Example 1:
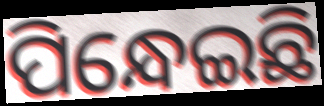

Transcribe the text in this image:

ପିନ୍ଧେଇଛି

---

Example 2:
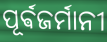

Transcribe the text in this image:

ପୂର୍ଵଜର୍ମାନୀ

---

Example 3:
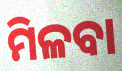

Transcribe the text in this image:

ମିଳବା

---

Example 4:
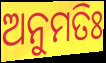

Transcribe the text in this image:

ଅନୁମତିଃ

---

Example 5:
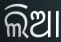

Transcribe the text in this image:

ଲିଆ